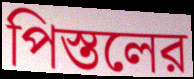
পিস্তলের